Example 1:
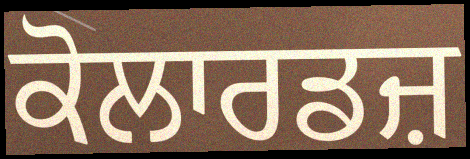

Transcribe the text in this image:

ਕੋਲਾਰਡਜ਼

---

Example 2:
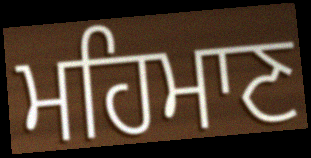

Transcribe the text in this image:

ਮਹਿਮਾਣ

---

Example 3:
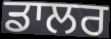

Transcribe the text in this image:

ਡਾਲਰ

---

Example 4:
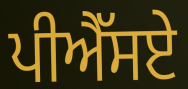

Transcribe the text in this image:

ਪੀਐੱਸਏ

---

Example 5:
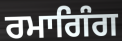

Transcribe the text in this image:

ਰਮਾਗਿੰਗ